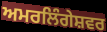
ਅਮਰਲਿੰਗੇਸ਼ਵਰ